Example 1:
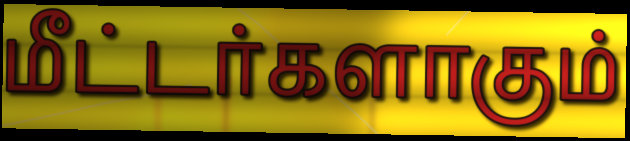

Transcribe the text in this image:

மீட்டர்களாகும்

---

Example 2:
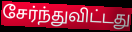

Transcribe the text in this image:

சேர்ந்துவிட்டது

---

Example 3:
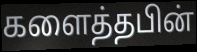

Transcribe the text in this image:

களைத்தபின்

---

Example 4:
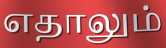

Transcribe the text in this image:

எதாலும்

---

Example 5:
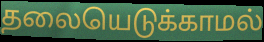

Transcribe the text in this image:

தலையெடுக்காமல்